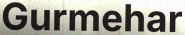
Gurmehar